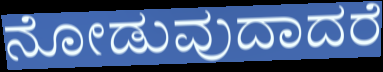
ನೋಡುವುದಾದರೆ